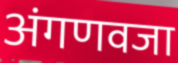
अंगणवजा